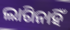
ଲାଗିନାହିଁ